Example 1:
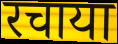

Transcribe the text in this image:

रचाया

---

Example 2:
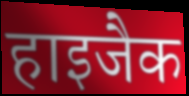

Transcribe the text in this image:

हाइजैक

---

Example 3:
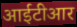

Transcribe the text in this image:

आईटीआर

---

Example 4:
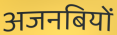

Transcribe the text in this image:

अजनबियों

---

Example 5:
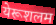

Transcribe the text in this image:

येरूशलम